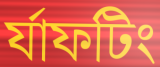
র্যাফটিং